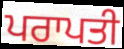
ਪਰਾਪਤੀ